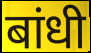
बांधी